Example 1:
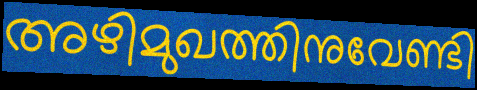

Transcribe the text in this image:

അഴിമുഖത്തിനുവേണ്ടി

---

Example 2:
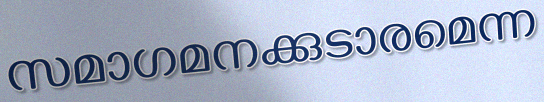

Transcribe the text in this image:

സമാഗമനക്കുടാരമെന്ന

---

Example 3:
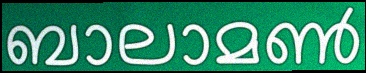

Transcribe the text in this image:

ബാലാമൺ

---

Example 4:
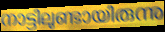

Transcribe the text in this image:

നാട്ടിലുണ്ടായിരുന്നു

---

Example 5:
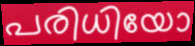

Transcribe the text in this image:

പരിധിയോ